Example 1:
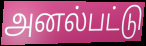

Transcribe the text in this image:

அனல்பட்டு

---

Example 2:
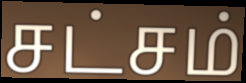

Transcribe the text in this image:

சட்சம்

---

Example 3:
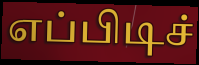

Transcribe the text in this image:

எப்பிடிச்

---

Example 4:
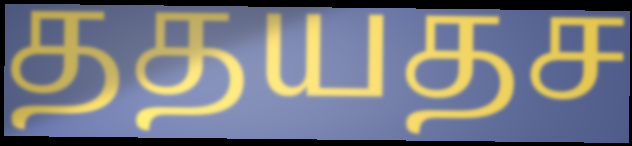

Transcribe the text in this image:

ததயதச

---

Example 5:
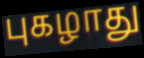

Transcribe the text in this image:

புகழாது